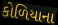
કોળિયાના